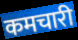
कमचारी